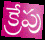
క్రేపు